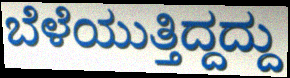
ಬೆಳೆಯುತ್ತಿದ್ದದ್ದು